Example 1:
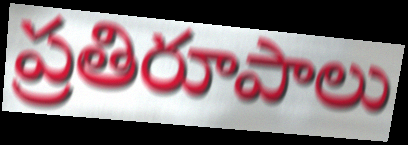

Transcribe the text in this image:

ప్రతిరూపాలు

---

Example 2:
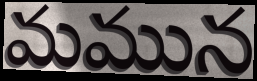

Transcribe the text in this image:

మమున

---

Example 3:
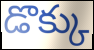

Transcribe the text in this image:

డొక్కు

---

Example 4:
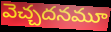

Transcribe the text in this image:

వెచ్చదనమూ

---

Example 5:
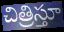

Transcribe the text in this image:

చిత్రిస్తూ